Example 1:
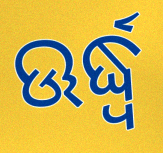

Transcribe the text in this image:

ଊର୍ଦ୍ଧ୍ବ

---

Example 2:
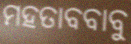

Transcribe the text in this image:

ମହତାବବାବୁ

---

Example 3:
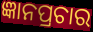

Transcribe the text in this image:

ଜ୍ଞାନପ୍ରଚାର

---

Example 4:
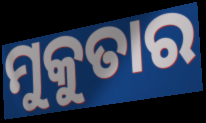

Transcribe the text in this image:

ମୁକୁତାର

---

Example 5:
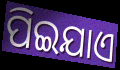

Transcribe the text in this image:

ପିଇଯାଏ